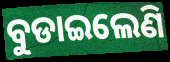
ବୁଡାଇଲେଣି